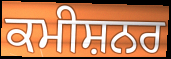
ਕਮੀਸ਼ਨਰ